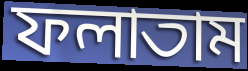
ফলাতাম